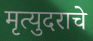
मृत्युदराचे